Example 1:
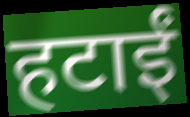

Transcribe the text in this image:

हटाईं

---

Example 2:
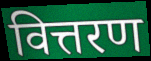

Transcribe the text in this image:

वित्तरण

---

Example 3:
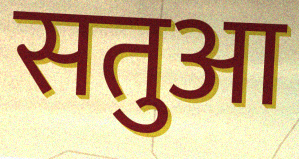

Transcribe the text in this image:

सतुआ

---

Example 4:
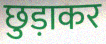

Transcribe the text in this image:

छुड़ाकर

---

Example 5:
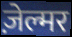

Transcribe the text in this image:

ज़ेल्मर